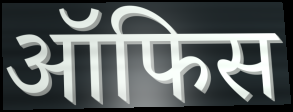
ऑफिस